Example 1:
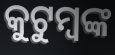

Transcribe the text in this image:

କୁଟୁମ୍ବଙ୍କ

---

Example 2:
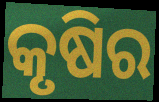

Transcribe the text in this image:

କୃଷିର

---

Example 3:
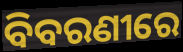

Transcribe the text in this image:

ବିବରଣୀରେ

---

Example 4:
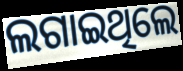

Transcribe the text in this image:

ଲଗାଇଥିଲେ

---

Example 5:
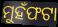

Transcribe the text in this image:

ମୁହଁଫଟା